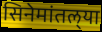
सिनेमांतल्या